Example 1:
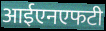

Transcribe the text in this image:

आईएनएफटी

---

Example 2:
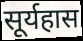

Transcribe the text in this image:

सूर्यहास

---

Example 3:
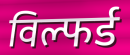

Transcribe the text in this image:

विल्फर्ड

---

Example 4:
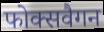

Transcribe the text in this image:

फोक्सवैगन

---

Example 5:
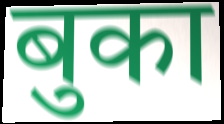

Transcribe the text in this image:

बुका